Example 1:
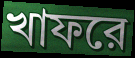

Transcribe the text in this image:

খাফরে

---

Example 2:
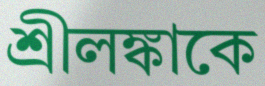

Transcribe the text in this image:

শ্রীলঙ্কাকে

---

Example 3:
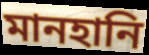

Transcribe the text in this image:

মানহানি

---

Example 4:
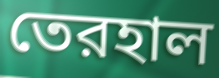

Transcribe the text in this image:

তেরহাল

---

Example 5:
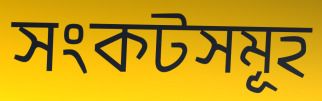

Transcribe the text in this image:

সংকটসমূহ